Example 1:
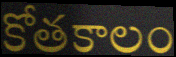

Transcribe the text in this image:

కోతకాలం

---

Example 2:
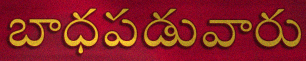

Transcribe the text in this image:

బాధపడువారు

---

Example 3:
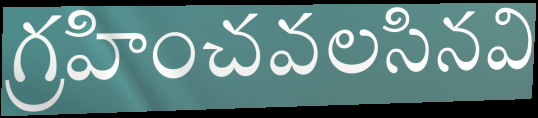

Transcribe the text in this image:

గ్రహించవలసినవి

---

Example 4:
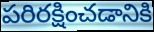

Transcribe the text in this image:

పరిరక్షించడానికి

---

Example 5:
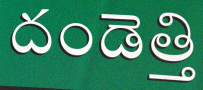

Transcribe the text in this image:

దండెత్తి